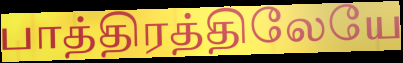
பாத்திரத்திலேயே